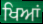
ਖਿਆਂ